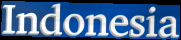
Indonesia